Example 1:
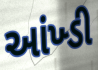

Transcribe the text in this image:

આંખ્ડી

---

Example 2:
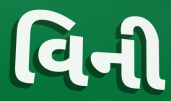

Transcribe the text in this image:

વિની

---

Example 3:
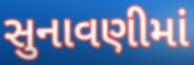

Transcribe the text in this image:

સુનાવણીમાં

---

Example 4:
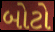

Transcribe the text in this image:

બોટો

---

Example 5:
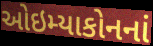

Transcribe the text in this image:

ઓઇમ્યાકોનનાં